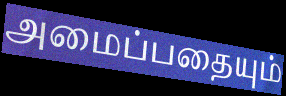
அமைப்பதையும்